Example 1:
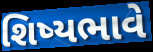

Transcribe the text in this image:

શિષ્યભાવે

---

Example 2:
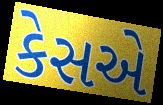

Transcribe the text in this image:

કેસએ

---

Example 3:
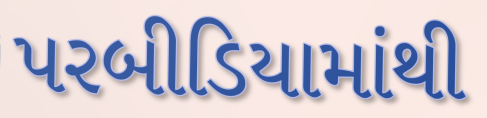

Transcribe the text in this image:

પરબીડિયામાંથી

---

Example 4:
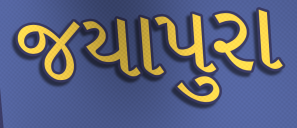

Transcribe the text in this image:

જયાપુરા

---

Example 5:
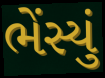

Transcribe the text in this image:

ભેંસ્યું